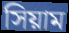
সিয়াম